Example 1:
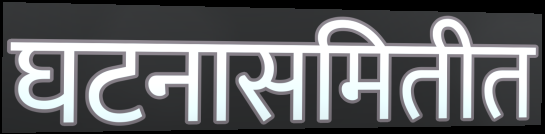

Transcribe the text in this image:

घटनासमितीत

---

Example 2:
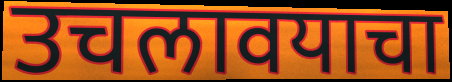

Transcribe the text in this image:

उचलावयाचा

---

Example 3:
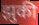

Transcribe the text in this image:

झुकी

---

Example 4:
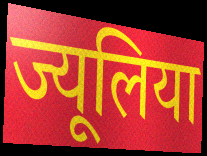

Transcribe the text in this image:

ज्यूलिया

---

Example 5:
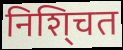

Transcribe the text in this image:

निश्‍चित